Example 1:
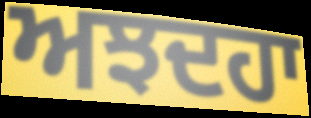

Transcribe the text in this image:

ਅਝਦਹਾ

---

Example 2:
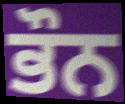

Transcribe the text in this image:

ਭੌਨ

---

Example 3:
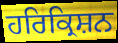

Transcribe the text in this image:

ਹਰਿਕ੍ਰਿਸ਼ਨ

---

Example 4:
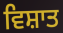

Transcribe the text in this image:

ਵਿਸ਼ਾਤ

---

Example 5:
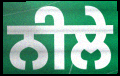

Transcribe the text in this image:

ਨੀਲੇ